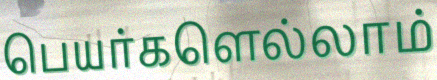
பெயர்களெல்லாம்